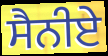
ਸੈਨੀਏ